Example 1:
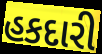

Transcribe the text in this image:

હકદારી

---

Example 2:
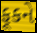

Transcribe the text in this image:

ફૂકને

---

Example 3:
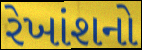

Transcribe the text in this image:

રેખાંશનો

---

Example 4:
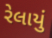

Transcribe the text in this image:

રેલાયું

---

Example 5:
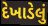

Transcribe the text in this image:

દેખાડેલું